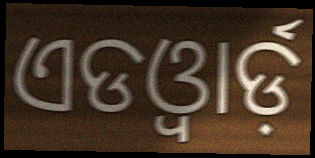
ଏଡଓ୍ବାର୍ଡ଼